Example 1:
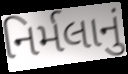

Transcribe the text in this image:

નિર્મલાનું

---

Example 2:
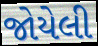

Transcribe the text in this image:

જોયેલી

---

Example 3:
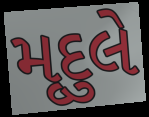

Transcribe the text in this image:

મૃદુલે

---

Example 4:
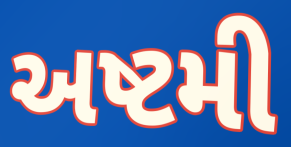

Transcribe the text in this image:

અષ્ટમી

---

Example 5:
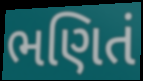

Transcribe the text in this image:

ભણિતં